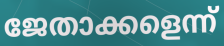
ജേതാക്കളെന്ന്